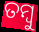
ତମ୍ବୁ